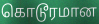
கொடூரமான